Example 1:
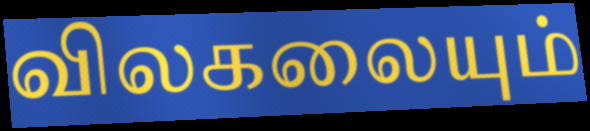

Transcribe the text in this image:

விலகலையும்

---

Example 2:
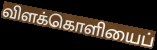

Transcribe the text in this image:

விளக்கொளியைப்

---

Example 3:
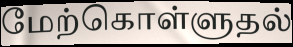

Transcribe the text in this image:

மேற்கொள்ளுதல்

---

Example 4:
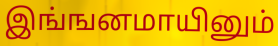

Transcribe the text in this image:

இங்ஙனமாயினும்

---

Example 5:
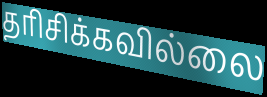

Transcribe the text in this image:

தரிசிக்கவில்லை